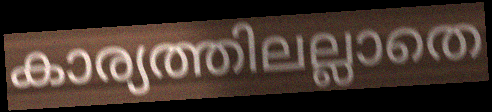
കാര്യത്തിലല്ലാതെ